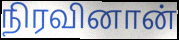
நிரவினான்